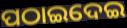
ପଠାଇଦେଇ